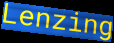
Lenzing